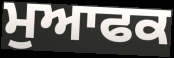
ਮੁਆਫਕ